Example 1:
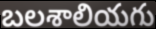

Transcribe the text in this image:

బలశాలియగు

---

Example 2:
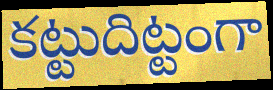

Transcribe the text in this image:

కట్టుదిట్టంగా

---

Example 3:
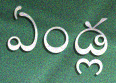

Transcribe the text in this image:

ఏండ్ల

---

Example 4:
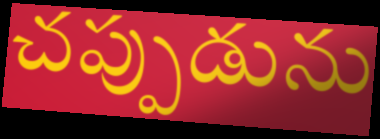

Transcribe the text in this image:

చప్పుడును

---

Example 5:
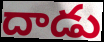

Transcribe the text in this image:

దాడు